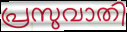
പ്രസുവാതി